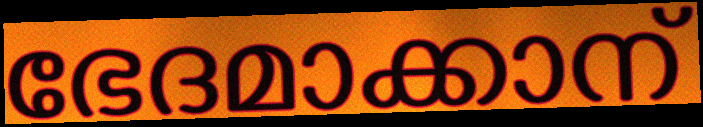
ഭേദമാക്കാന്